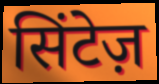
सिंटेज़